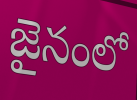
జైనంలో